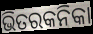
ଭିତରକନିକା